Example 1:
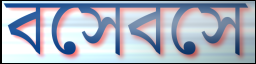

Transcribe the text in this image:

বসেবসে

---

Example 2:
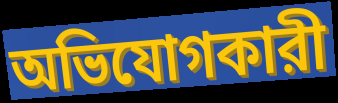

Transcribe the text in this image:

অভিযোগকারী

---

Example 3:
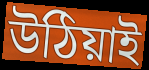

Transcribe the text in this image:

উঠিয়াই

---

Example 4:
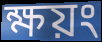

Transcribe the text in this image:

ক্ষয়ং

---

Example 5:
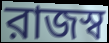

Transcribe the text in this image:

রাজস্ব